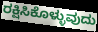
ರಕ್ಷಿಸಿಕೊಳ್ಳುವುದು